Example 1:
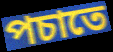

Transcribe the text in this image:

পচাতে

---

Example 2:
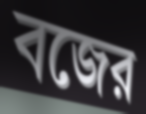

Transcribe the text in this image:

বজের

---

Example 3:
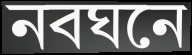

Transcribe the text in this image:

নবঘনে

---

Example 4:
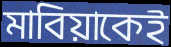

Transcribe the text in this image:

মাবিয়াকেই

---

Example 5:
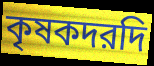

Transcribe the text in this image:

কৃষকদরদি